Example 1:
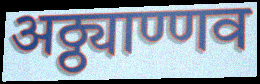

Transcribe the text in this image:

अठ्ठ्याण्णव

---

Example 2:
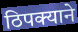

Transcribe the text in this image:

ठिपक्याने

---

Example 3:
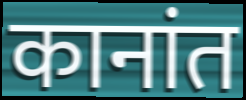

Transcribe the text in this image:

कानांत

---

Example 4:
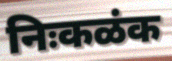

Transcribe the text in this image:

निःकळंक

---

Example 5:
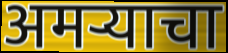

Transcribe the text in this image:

अमऱ्याचा